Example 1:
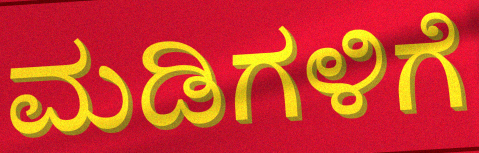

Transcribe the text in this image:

ಮಡಿಗಳಿಗೆ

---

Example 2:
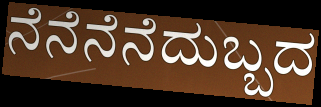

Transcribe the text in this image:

ನೆನೆನೆನೆದುಬ್ಬದ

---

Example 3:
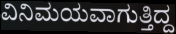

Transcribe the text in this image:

ವಿನಿಮಯವಾಗುತ್ತಿದ್ದ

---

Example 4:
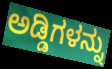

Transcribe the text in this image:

ಅಡ್ಡಿಗಳನ್ನು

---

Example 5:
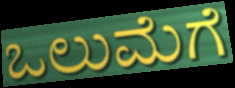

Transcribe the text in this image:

ಒಲುಮೆಗೆ